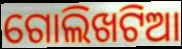
ଗୋଲିଖଟିଆ